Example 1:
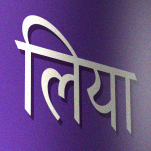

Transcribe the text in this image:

लिया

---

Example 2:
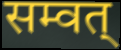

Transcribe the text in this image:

सम्वत्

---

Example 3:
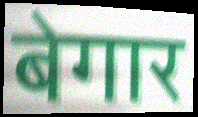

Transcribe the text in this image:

बेगार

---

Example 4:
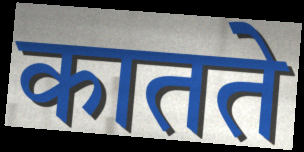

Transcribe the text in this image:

कातते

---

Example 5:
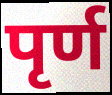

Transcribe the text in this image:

पृर्ण